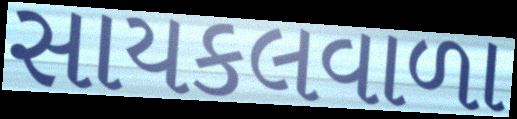
સાયકલવાળા